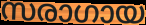
സരാഗായ